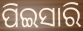
ପିଇସାରି